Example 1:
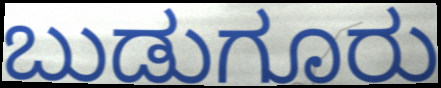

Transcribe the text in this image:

ಬುಡುಗೂರು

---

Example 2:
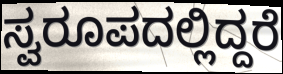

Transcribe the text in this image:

ಸ್ವರೂಪದಲ್ಲಿದ್ದರೆ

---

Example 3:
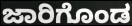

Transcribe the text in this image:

ಜಾರಿಗೊಂಡ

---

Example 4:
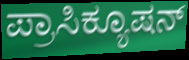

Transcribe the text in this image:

ಪ್ರಾಸಿಕ್ಯೂಷನ್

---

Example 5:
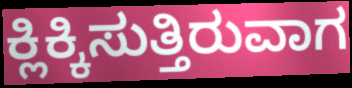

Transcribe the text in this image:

ಕ್ಲಿಕ್ಕಿಸುತ್ತಿರುವಾಗ